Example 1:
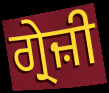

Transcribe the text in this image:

ਗ੍ਰੇਜ਼ੀ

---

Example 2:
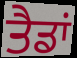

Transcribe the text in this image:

ਤੈਡਾਂ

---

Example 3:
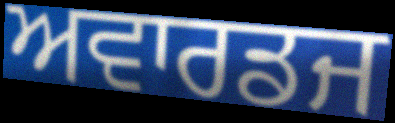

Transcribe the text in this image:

ਅਵਾਰਡਜ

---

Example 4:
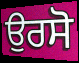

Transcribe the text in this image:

ਉਰਸੋ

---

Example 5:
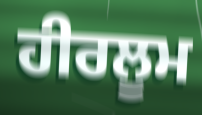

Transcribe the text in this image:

ਹੀਰਲੂਮ